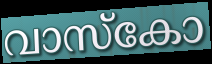
വാസ്കോ